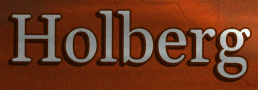
Holberg